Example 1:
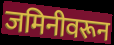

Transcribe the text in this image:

जमिनीवरून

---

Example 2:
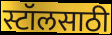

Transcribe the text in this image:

स्टॉलसाठी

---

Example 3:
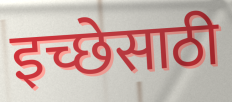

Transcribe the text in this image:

इच्छेसाठी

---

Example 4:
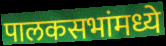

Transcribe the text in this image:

पालकसभांमध्ये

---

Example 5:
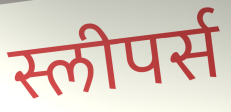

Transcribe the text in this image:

स्लीपर्स